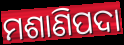
ମଶାଣିପଦା